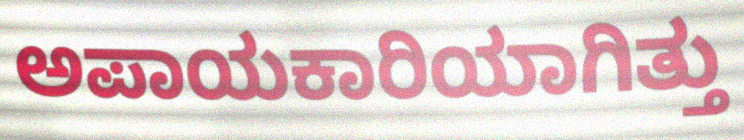
ಅಪಾಯಕಾರಿಯಾಗಿತ್ತು